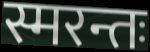
स्मरन्तः